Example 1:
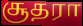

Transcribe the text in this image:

சூதரா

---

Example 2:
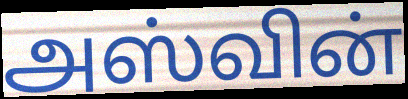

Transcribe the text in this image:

அஸ்வின்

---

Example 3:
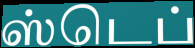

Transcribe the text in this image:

ஸ்டெப்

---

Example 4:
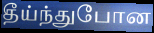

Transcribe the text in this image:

தீய்ந்துபோன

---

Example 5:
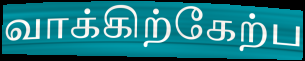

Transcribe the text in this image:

வாக்கிற்கேற்ப